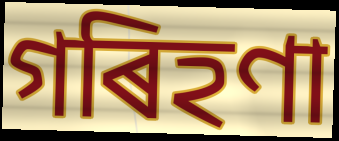
গৰিহণা